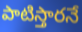
పాటిస్తారనే